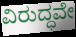
ವಿರುದ್ಧವೇ